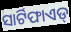
ସାର୍ଟିଫାଏଡ୍